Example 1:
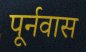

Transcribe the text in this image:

पूर्नवास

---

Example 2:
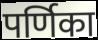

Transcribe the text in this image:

पर्णिका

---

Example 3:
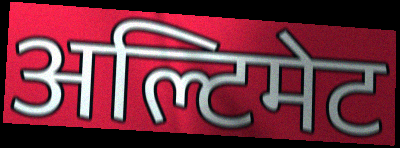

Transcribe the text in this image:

अल्टिमेट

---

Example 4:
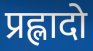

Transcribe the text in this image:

प्रह्लादो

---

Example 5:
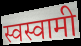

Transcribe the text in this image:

स्वस्वामी